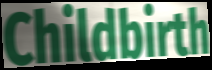
Childbirth